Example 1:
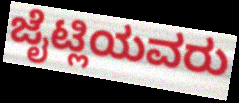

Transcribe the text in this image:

ಜೈಟ್ಲಿಯವರು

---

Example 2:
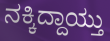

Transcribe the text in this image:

ನಕ್ಕಿದ್ದಾಯ್ತು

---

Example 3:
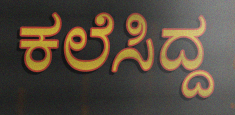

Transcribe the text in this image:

ಕಲೆಸಿದ್ದ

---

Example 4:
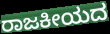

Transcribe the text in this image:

ರಾಜಕೀಯದ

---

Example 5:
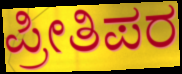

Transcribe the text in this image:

ಪ್ರೀತಿಪರ